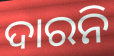
ଦାରନି